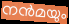
നൻമയും